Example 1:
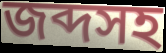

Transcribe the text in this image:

জব্দসহ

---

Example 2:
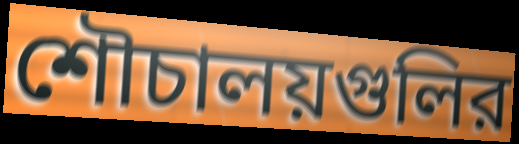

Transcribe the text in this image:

শৌচালয়গুলির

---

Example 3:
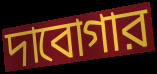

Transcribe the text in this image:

দাবোগার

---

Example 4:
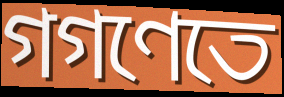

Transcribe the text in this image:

গগণেতে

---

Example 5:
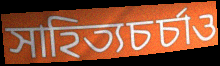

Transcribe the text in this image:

সাহিত্যচর্চাও